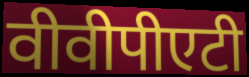
वीवीपीएटी